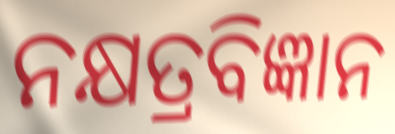
ନକ୍ଷତ୍ରବିଜ୍ଞାନ